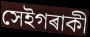
সেইগৰাকী